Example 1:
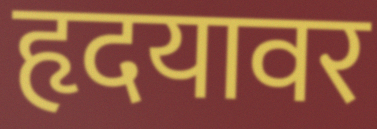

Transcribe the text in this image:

हृदयावर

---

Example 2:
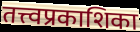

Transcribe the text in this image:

तत्त्वप्रकाशिका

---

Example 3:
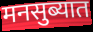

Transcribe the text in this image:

मनसुब्यात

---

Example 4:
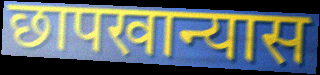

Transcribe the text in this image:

छापखान्यास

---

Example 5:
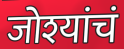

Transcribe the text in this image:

जोश्यांचं